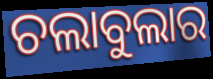
ଚଲାବୁଲାର